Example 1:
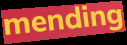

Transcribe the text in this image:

mending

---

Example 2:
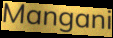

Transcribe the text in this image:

Mangani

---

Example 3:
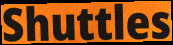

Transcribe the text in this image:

Shuttles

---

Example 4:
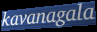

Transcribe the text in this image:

kavanagala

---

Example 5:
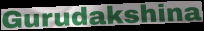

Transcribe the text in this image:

Gurudakshina